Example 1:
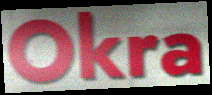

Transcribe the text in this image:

Okra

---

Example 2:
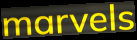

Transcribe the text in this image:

marvels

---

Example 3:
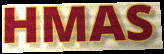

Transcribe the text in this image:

HMAS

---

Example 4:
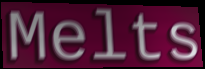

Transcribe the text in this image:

Melts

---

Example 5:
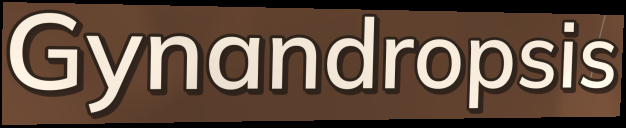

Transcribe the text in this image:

Gynandropsis